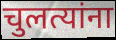
चुलत्यांना